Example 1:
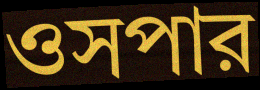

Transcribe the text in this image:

ওসপার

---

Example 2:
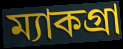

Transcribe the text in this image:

ম্যাকগ্রা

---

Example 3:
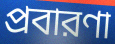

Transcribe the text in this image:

প্রবারণা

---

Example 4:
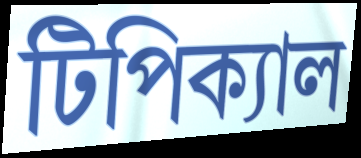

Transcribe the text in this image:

টিপিক্যাল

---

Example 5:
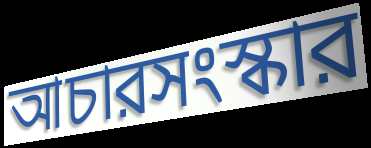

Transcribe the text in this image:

আচারসংস্কার